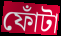
ফোঁটা